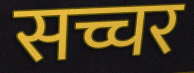
सच्चर